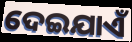
ଦେଇଯାଏଁ